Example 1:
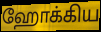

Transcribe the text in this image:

ஹோக்கிய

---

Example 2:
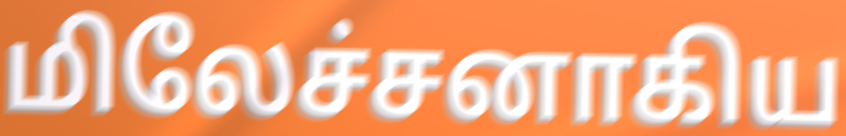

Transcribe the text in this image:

மிலேச்சனாகிய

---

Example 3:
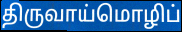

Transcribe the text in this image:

திருவாய்மொழிப்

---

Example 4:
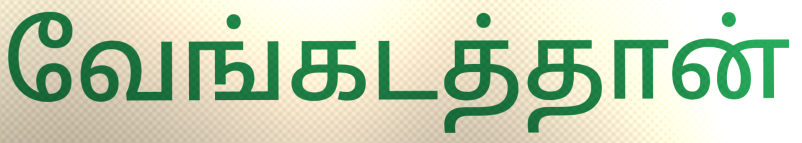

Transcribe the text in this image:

வேங்கடத்தான்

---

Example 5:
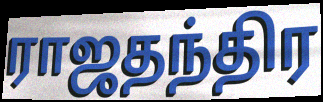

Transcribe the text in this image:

ராஜதந்திர